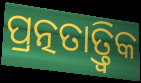
ପ୍ରତ୍ନତାତ୍ତ୍ଵିକ